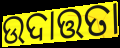
ଉଦାତ୍ତତା